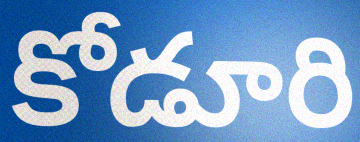
కోడూరి